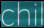
chil